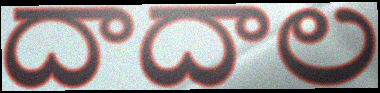
దాదాల